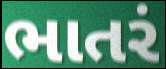
ભાતરં